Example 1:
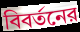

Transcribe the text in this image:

বিবর্তনের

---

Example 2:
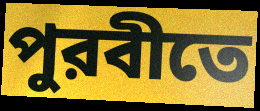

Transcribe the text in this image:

পুরবীতে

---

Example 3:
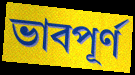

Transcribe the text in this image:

ভাবপূর্ণ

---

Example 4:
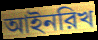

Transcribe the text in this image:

আইনরিখ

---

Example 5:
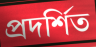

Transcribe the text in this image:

প্রদর্শিত